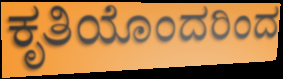
ಕೃತಿಯೊಂದರಿಂದ